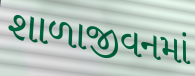
શાળાજીવનમાં